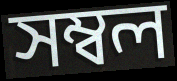
সম্বল